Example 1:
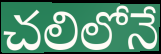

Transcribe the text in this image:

చలిలోనే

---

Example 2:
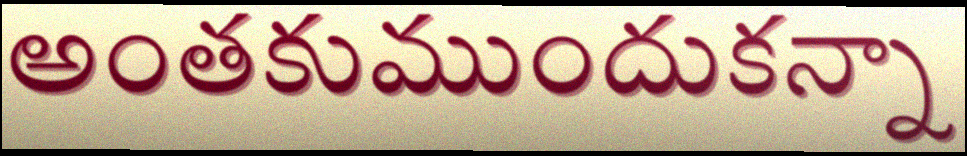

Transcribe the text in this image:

అంతకుముందుకన్నా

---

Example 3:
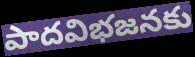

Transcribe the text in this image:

పాదవిభజనకు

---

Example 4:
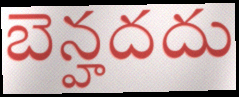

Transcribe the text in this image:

బెన్హదదు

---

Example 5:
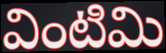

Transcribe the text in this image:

వింటిమి